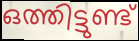
ഒത്തിട്ടുണ്ട്